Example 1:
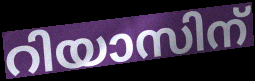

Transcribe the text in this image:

റിയാസിന്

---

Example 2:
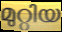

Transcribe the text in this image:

മുറ്റിയ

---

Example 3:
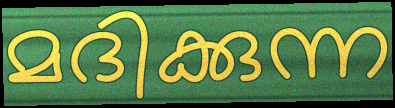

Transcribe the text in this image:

മദിക്കുന്ന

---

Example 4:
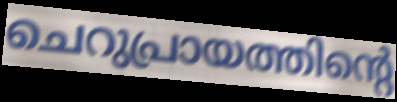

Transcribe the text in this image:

ചെറുപ്രായത്തിന്റെ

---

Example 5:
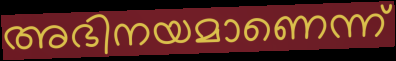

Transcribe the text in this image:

അഭിനയമാണെന്ന്